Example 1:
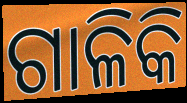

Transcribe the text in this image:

ଗାଳିକି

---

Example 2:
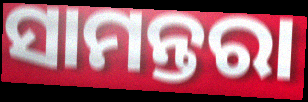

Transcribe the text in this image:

ସାମନ୍ତରା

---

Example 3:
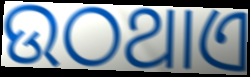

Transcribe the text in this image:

ଉଠଥାଏ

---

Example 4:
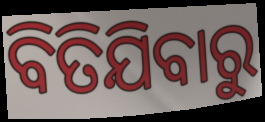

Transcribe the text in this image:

ବିତିଯିବାରୁ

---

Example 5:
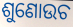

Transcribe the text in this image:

ଶୁଣୋଉଚ